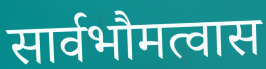
सार्वभौमत्वास